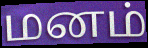
மனம்